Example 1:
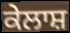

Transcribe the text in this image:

ਕੇਲਾਸ਼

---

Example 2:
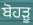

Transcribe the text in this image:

ਬੋਹੜੂ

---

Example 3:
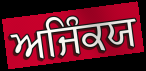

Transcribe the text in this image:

ਅਜਿੰਕਯ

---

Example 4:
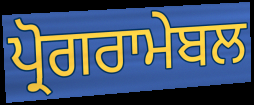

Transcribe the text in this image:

ਪ੍ਰੋਗਰਾਮੇਬਲ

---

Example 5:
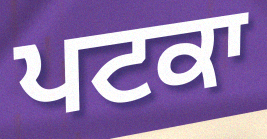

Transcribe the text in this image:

ਪਟਕਾ